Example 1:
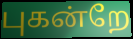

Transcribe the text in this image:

புகன்றே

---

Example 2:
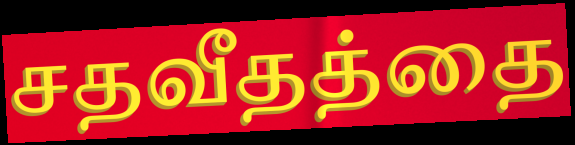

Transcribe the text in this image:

சதவீதத்தை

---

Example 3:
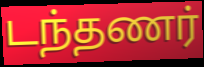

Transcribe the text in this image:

டந்தணர்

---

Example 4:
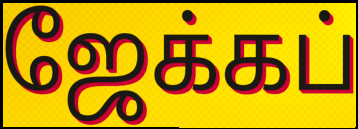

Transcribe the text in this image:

ஜேக்கப்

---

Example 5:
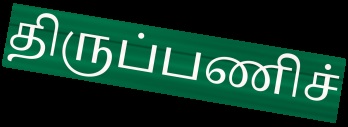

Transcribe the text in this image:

திருப்பணிச்